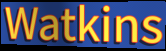
Watkins